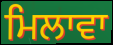
ਮਿਲਾਵਾ